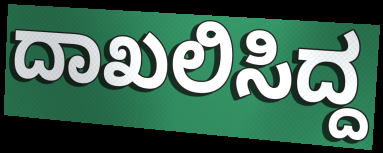
ದಾಖಲಿಸಿದ್ದ